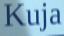
Kuja